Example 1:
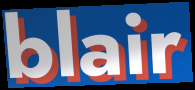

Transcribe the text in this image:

blair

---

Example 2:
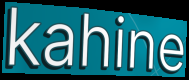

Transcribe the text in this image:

kahine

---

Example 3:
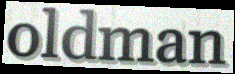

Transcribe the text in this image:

oldman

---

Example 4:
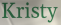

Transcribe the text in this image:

Kristy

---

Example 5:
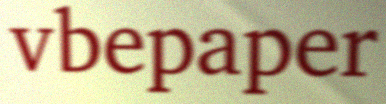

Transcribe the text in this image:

vbepaper